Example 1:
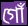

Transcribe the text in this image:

গোঁ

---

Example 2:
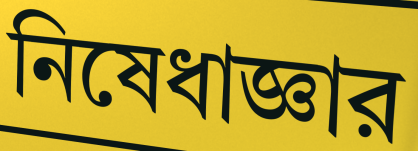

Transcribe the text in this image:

নিষেধাজ্ঞার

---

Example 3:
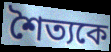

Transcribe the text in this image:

শৈত্যকে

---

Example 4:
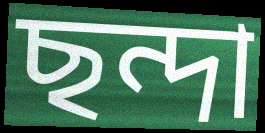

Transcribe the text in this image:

ছন্দা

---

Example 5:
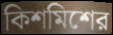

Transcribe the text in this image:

কিশমিশের